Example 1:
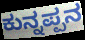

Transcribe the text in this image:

ಕುನ್ನಪ್ಪನ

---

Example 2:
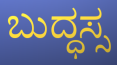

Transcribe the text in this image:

ಬುದ್ಧಸ್ಸ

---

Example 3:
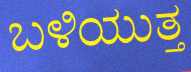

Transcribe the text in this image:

ಬಳಿಯುತ್ತ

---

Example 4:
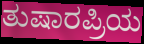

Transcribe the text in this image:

ತುಷಾರಪ್ರಿಯ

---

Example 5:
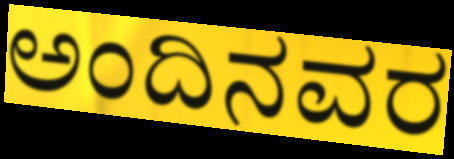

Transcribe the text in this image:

ಅಂದಿನವರ